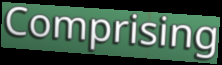
Comprising